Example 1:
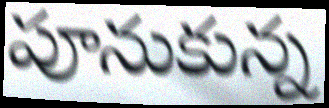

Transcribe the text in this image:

పూనుకున్న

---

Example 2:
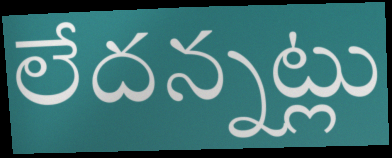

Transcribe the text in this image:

లేదన్నట్లు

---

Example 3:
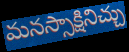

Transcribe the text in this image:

మనస్సాక్షినిచ్చు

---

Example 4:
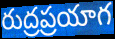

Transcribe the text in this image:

రుద్రప్రయాగ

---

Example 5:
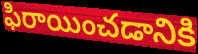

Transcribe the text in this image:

ఫిరాయించడానికి